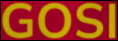
GOSI